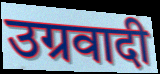
उग्रवादी